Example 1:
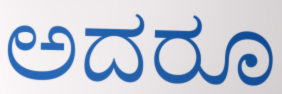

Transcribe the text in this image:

ಅದರೂ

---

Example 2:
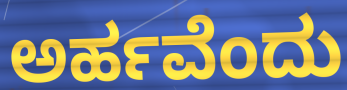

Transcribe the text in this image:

ಅರ್ಹವೆಂದು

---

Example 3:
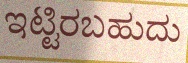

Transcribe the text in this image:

ಇಟ್ಟಿರಬಹುದು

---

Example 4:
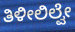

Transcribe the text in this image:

ತಿಳೀಲಿಲ್ವೇ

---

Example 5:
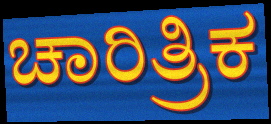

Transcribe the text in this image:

ಚಾರಿತ್ರಿಕ